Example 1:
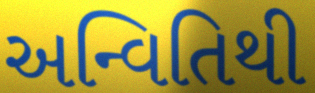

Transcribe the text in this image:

અન્વિતિથી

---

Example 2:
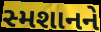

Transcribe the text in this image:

સ્મશાનને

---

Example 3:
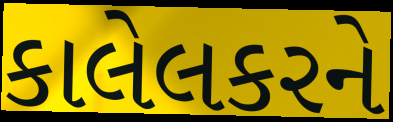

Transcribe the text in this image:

કાલેલકરને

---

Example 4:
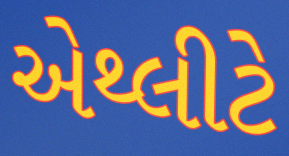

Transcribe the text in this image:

એથ્લીટે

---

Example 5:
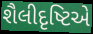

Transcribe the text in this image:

શૈલીદૃષ્ટિએ